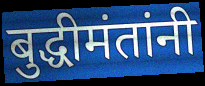
बुद्धीमंतांनी